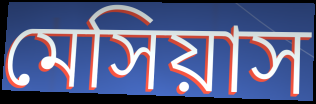
মেসিয়াস